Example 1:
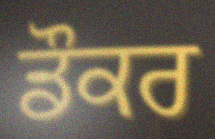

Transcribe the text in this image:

ਡੌਕਰ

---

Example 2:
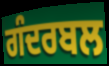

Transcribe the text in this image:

ਗੰਦਰਬਲ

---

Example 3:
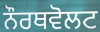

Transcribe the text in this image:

ਨੌਰਥਵੋਲਟ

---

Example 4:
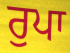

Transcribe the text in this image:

ਰੁਪਾ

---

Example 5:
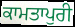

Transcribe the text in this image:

ਕਾਮਤਾਪੁਰੀ